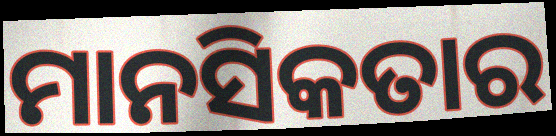
ମାନସିକତାର